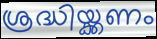
ശ്രദ്ധിയ്ക്കണം